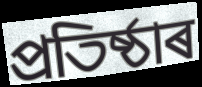
প্ৰতিষ্ঠাৰ